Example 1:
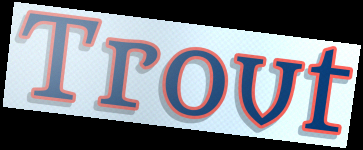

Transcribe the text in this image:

Trout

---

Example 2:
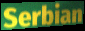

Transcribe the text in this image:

Serbian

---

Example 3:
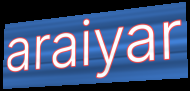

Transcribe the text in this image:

araiyar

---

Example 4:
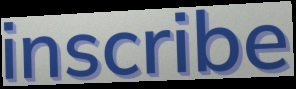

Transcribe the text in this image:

inscribe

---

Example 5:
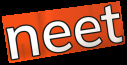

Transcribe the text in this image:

neet